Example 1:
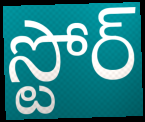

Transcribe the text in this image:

స్టోర్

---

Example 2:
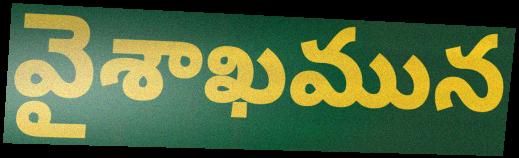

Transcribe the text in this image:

వైశాఖమున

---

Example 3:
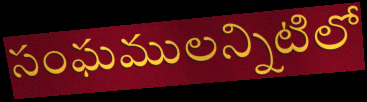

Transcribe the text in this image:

సంఘములన్నిటిలో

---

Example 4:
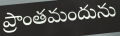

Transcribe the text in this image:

ప్రాంతమందును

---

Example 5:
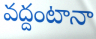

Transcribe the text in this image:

వద్దంటానా